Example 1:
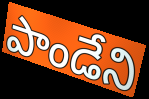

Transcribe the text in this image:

పాండేని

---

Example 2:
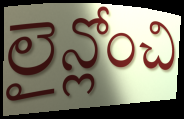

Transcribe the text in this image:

లైన్లోంచి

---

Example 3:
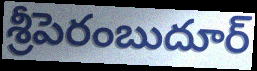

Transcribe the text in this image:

శ్రీపెరంబుదూర్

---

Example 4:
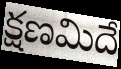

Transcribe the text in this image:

క్షణమిదే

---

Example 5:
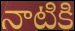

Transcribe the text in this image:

నాటికి